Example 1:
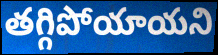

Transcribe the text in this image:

తగ్గిపోయాయని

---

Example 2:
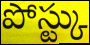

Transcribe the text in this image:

పోస్ట్కు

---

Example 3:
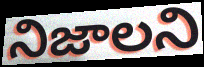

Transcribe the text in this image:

నిజాలని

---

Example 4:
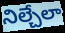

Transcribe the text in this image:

నిల్చేలా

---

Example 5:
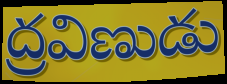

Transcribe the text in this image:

ద్రవిణుడు